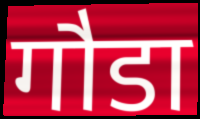
गौडा